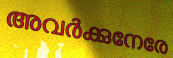
അവർക്കുനേരേ